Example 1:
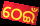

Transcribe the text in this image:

ଠେଇଁ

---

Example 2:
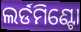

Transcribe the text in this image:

ଲର୍ଡମିଣ୍ଟୋ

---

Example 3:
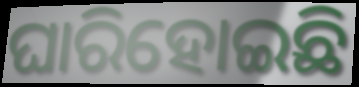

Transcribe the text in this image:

ଘାରିହୋଇଛି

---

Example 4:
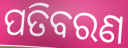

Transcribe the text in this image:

ପତିବରଣ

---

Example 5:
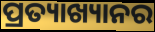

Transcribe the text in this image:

ପ୍ରତ୍ୟାଖ୍ୟାନର